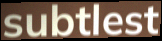
subtlest